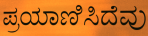
ಪ್ರಯಾಣಿಸಿದೆವು